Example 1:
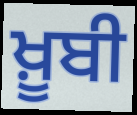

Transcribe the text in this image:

ਖ਼ੂਬੀ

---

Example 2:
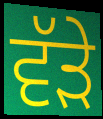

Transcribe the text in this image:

ਵੱਡ਼ੇ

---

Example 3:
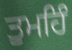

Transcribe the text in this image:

ਤੁਮਹਿੰ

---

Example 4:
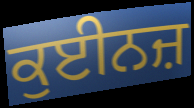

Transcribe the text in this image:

ਕੁਈਨਜ਼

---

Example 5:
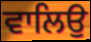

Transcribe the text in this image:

ਵਾਲਿਉ